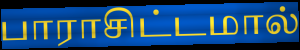
பாராசிட்டமால்